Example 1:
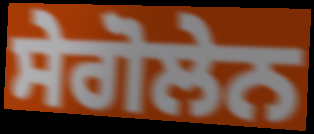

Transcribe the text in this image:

ਸੇਗੋਲੇਨ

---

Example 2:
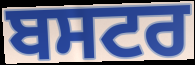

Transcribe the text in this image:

ਬਸਟਰ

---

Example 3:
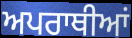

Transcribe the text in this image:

ਅਪਰਾਥੀਆਂ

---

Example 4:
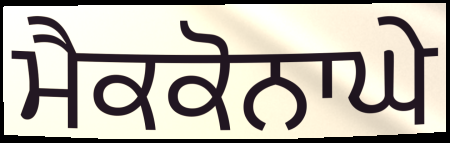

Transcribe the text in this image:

ਮੈਕਕੋਨਾਘੇ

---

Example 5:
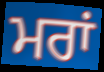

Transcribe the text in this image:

ਮਰਾਂ